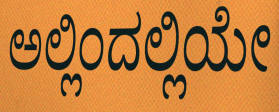
ಅಲ್ಲಿಂದಲ್ಲಿಯೇ